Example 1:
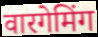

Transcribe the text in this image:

वारगेमिंग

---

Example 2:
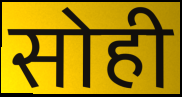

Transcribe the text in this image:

सोही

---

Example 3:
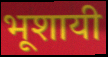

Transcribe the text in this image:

भूशायी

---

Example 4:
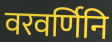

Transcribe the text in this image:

वरवर्णिनि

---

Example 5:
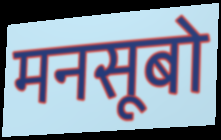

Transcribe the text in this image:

मनसूबो